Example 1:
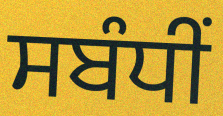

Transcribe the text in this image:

ਸਬੰਧੀਂ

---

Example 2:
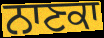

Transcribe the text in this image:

ਨਾਣਕਾ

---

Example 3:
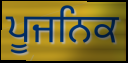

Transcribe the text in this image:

ਪੂਜਨਿਕ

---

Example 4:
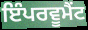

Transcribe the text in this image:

ਇੰਪਰਵੂਮੈਂਟ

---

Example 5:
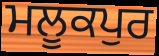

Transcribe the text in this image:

ਮਲੂਕਪੁਰ